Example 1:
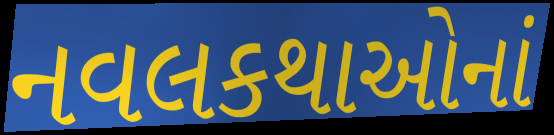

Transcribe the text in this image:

નવલકથાઓનાં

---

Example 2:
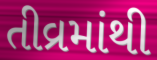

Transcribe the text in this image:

તીવ્રમાંથી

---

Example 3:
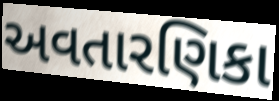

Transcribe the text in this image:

અવતારણિકા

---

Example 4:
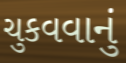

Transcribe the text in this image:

ચુકવવાનું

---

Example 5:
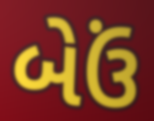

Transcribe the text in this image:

બેઉં